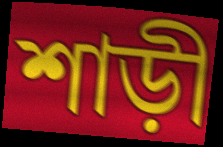
শাড়ী